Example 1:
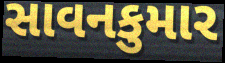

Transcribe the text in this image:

સાવનકુમાર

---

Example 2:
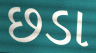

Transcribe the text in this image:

છડા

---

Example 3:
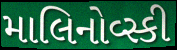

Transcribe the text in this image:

માલિનોવ્સ્કી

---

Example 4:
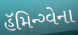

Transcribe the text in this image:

હૅમિન્ગ્વેના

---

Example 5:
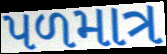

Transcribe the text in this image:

પળમાત્ર